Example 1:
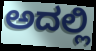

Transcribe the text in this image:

ಅದಲ್ಲಿ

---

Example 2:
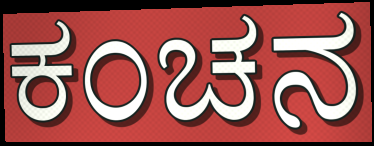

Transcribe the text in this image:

ಕಂಚನ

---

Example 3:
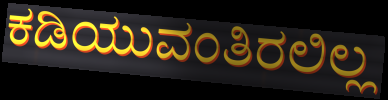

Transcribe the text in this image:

ಕಡಿಯುವಂತಿರಲಿಲ್ಲ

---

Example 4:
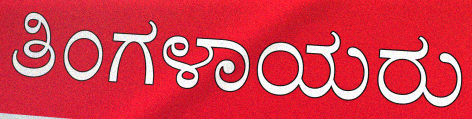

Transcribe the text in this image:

ತಿಂಗಳಾಯರು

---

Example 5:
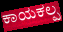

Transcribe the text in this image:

ಕಾಯಕಲ್ಪ